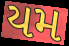
યમ